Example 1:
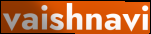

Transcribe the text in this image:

vaishnavi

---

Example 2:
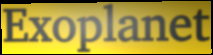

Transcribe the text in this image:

Exoplanet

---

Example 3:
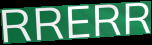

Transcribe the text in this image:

RRERR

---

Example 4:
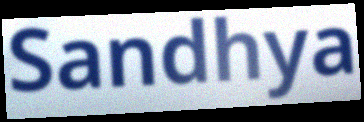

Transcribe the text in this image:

Sandhya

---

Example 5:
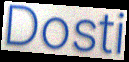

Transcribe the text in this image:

Dosti